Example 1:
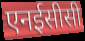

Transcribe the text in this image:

एनईसीसी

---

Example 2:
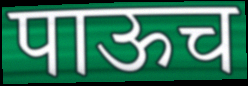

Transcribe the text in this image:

पाऊच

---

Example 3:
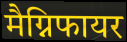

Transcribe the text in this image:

मैग्निफायर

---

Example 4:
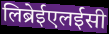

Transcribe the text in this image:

लिब्रेईएलईसी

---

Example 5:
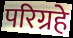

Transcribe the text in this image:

परिग्रहे